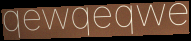
qewqeqwe